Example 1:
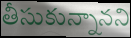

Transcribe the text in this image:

తీసుకున్నానని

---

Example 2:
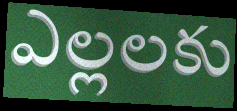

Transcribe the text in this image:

ఎల్లలకు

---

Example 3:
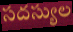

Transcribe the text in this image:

సదస్యుల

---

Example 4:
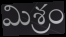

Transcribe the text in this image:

మిశ్రం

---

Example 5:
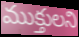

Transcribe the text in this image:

ముక్తులని